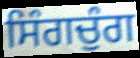
ਸਿੰਗਚੁੰਗ